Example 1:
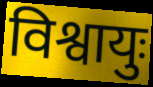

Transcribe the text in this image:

विश्वायुः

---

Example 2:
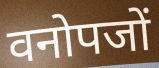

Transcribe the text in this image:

वनोपजों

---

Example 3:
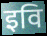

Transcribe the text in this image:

इवि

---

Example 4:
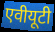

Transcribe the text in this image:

एवीयूटी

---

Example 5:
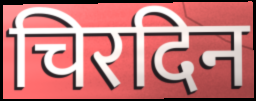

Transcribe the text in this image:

चिरदिन